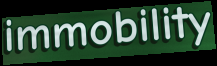
immobility